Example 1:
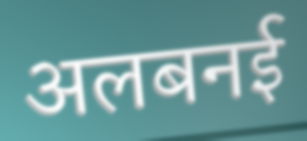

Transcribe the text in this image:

अलबनई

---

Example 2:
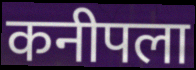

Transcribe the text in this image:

कनीपला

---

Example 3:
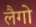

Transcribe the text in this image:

लैगो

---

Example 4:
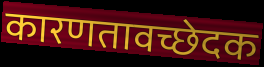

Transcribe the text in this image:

कारणतावच्छेदक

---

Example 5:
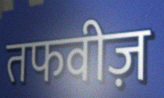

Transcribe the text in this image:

तफवीज़